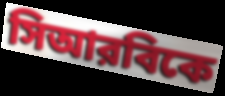
সিআরবিকে